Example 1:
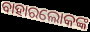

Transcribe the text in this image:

ବାହାରଲୋକଙ୍କ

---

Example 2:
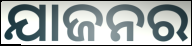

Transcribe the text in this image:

ଯାଜନର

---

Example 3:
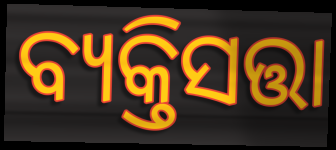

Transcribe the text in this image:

ବ୍ୟକ୍ତିସତ୍ତା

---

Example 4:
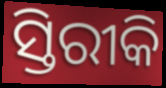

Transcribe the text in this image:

ସ୍ତିରୀକି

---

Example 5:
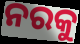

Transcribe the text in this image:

ନରକୁ